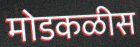
मोडकळीस